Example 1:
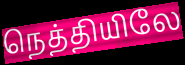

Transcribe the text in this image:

நெத்தியிலே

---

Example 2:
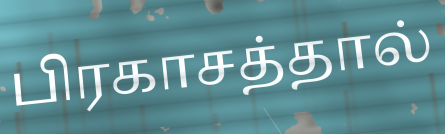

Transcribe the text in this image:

பிரகாசத்தால்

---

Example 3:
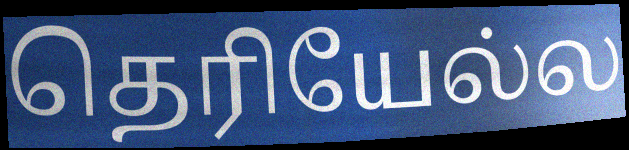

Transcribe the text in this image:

தெரியேல்ல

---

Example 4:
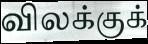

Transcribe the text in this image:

விலக்குக்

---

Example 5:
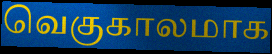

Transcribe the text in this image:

வெகுகாலமாக